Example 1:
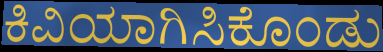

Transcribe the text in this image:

ಕಿವಿಯಾಗಿಸಿಕೊಂಡು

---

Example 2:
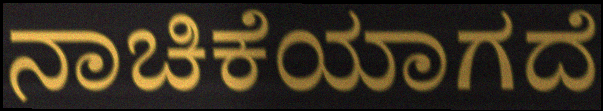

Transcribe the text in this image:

ನಾಚಿಕೆಯಾಗದೆ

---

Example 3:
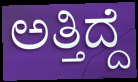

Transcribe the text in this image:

ಅತ್ತಿದ್ದೆ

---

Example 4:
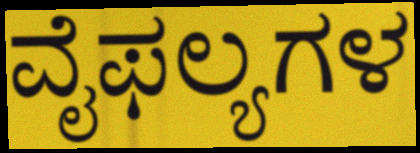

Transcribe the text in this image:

ವೈಫಲ್ಯಗಳ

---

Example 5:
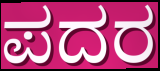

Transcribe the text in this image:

ಪದರ